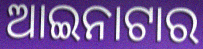
ଆଇନାଟାର